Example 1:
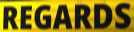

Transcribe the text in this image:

REGARDS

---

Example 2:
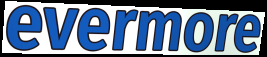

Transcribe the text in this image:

evermore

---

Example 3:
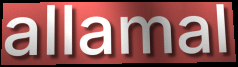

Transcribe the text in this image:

allamal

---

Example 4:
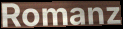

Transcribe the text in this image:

Romanz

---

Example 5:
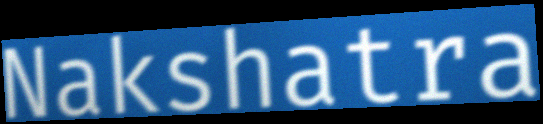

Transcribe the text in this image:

Nakshatra